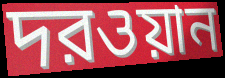
দরওয়ান